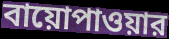
বায়োপাওয়ার